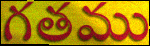
గతము